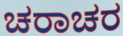
ಚರಾಚರ